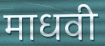
माधवी